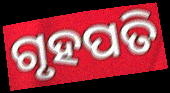
ଗୃହପତି